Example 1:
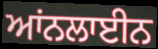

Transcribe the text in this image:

ਆਂਨਲਾਈਨ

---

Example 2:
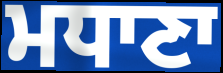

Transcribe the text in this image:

ਮਧਾਣਾ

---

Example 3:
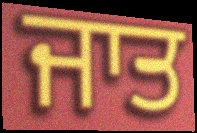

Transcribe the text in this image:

ਜਾਤ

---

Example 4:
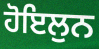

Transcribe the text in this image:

ਹੋਇਲੁਨ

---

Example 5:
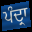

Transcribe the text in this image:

ਪੰਦ੍ਰਾ